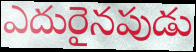
ఎదురైనపుడు